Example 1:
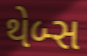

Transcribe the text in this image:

થેબ્સ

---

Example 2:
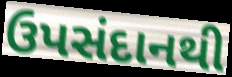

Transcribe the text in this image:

ઉપસંદાનથી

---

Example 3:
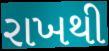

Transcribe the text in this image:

રાખથી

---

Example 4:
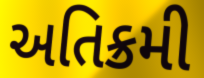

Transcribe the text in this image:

અતિક્રમી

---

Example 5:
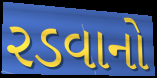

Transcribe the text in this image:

રડવાનો